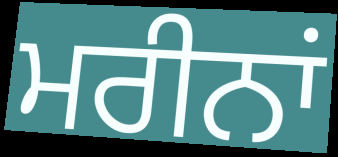
ਮਰੀਨਾਂ